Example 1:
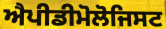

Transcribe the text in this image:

ਐਪੀਡੀਮੋਲੋਜਿਸਟ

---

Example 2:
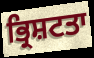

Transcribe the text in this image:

ਭ੍ਰਿਸ਼ਟਤਾ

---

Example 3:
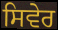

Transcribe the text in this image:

ਸਿਵੇਰ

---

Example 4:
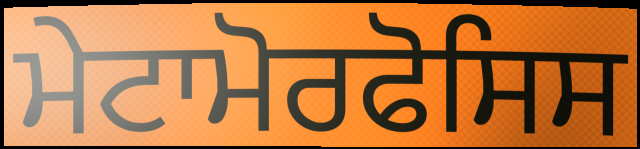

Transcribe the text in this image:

ਮੇਟਾਮੋਰਫੋਸਿਸ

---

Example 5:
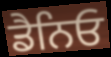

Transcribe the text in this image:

ਡੈਨਿਓ